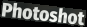
Photoshot